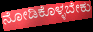
ನೋಡಿಕೊಳ್ಳಬೇಕು